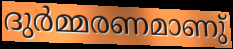
ദുർമ്മരണമാണു്